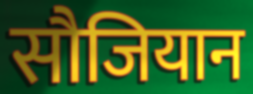
सौजियान